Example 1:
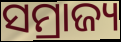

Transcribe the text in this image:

ସମ୍ରାଜ୍ୟ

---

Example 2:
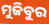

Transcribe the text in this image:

ମୁଜିବୁର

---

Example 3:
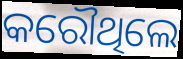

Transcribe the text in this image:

କରୌଥିଲେ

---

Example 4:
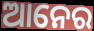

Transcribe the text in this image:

ଆନେର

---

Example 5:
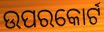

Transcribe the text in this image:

ଉପରକୋର୍ଟ